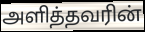
அளித்தவரின்